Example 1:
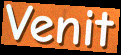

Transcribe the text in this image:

Venit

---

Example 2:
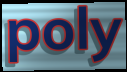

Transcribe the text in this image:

poly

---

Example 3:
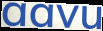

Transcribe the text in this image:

aavu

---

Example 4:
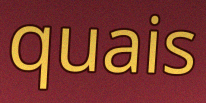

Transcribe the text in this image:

quais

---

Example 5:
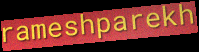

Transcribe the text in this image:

rameshparekh